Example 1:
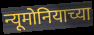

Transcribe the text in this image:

न्यूमोनियाच्या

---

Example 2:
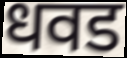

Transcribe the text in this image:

धवड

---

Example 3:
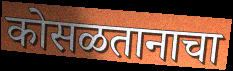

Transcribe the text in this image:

कोसळतानाचा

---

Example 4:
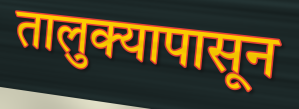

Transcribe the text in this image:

तालुक्यापासून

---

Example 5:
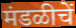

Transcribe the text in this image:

मंडळीचें